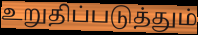
உறுதிப்படுத்தும்